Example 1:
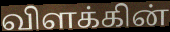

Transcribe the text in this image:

விளக்கின்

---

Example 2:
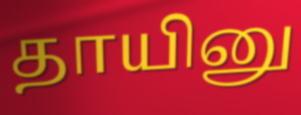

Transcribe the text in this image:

தாயினு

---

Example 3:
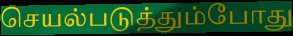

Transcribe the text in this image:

செயல்படுத்தும்போது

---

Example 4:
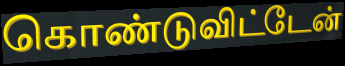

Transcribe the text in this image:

கொண்டுவிட்டேன்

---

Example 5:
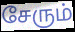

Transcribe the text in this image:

சேரும்